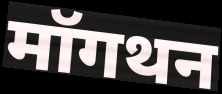
मॉगथन